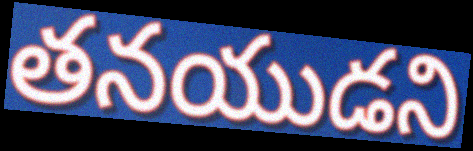
తనయుడని